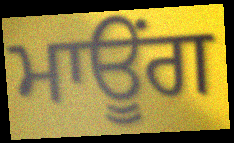
ਮਾਊਂਗ